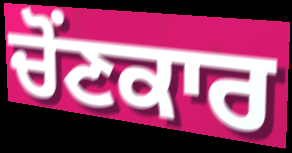
ਚੋਂਣਕਾਰ